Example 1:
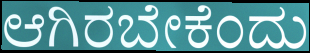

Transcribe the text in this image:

ಆಗಿರಬೇಕೆಂದು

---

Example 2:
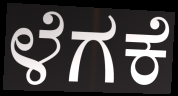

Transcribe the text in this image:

ಳೆಗಕೆ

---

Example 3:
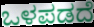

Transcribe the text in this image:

ಒಳಪಡದೆ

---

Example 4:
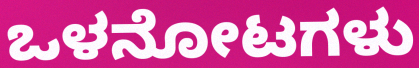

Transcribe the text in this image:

ಒಳನೋಟಗಳು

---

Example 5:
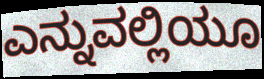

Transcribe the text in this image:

ಎನ್ನುವಲ್ಲಿಯೂ